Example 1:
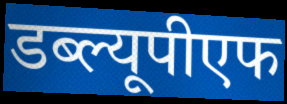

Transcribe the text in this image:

डब्ल्यूपीएफ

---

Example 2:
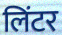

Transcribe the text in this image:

लिंटर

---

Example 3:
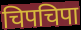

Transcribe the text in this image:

चिपचिपा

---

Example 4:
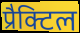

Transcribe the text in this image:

प्रैक्टिल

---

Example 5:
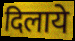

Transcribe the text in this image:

दिलाये